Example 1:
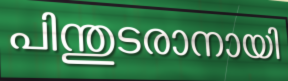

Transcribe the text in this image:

പിന്തുടരാനായി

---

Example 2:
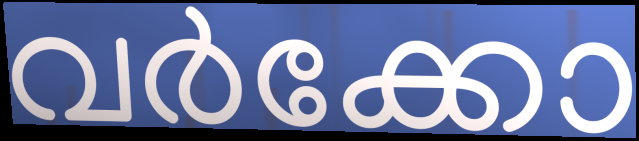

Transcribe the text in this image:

വർക്കോ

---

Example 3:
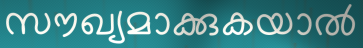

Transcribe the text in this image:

സൗഖ്യമാക്കുകയാൽ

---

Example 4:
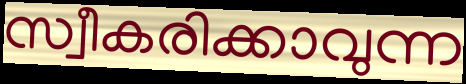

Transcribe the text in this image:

സ്വീകരിക്കാവുന്ന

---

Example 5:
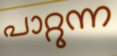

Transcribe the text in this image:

പാറ്റുന്ന